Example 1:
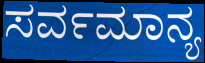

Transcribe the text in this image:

ಸರ್ವಮಾನ್ಯ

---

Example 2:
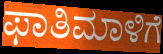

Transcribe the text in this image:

ಫಾತಿಮಾಳಿಗೆ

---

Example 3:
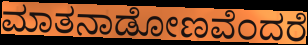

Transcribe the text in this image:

ಮಾತನಾಡೋಣವೆಂದರೆ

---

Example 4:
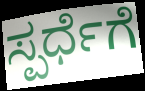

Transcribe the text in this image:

ಸ್ಪರ್ಧೆಗೆ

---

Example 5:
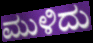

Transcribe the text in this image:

ಮುಳಿದು